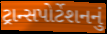
ટ્રાન્સપોર્ટેશનનું